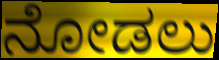
ನೋಡಲು